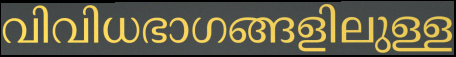
വിവിധഭാഗങ്ങളിലുള്ള